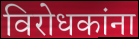
विरोधकांना